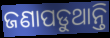
ଜଣାପଡୁଥାନ୍ତି